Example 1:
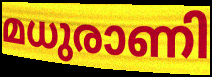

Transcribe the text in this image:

മധുരാണി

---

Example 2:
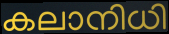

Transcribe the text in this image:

കലാനിധി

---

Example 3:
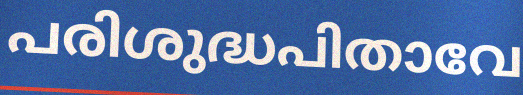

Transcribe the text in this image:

പരിശുദ്ധപിതാവേ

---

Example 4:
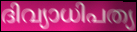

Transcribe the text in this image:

ദിവ്യാധിപത്യ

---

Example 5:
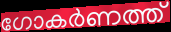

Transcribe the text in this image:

ഗോകർണത്ത്